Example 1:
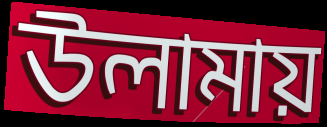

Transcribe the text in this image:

উলামায়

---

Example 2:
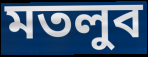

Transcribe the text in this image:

মতলুব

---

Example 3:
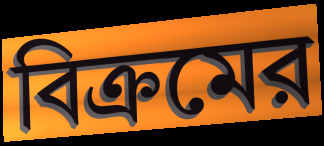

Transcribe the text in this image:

বিক্রমের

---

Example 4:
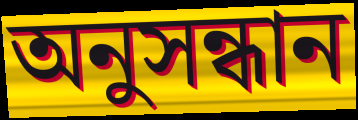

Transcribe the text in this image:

অনুসন্ধান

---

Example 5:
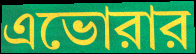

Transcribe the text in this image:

এভোরার